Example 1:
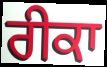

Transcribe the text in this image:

ਰੀਕਾ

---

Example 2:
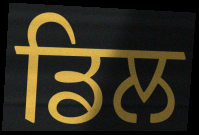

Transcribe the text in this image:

ਡਿਲ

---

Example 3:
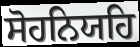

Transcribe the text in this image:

ਸੋਹਨਿਯਹਿ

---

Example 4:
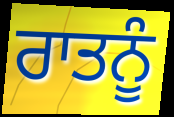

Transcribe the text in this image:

ਰਾਤਨੂੰ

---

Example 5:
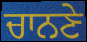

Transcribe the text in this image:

ਚਾਨਣੇ